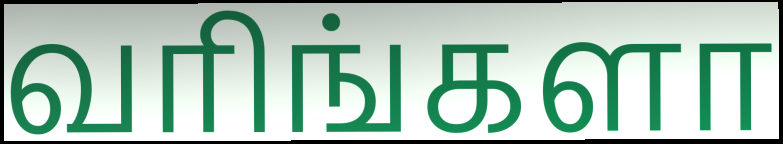
வரிங்களா